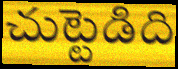
చుట్టెడిది